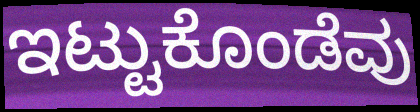
ಇಟ್ಟುಕೊಂಡೆವು